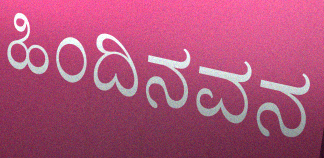
ಹಿಂದಿನವನ